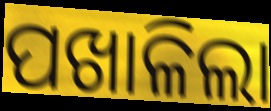
ପଖାଳିଲା